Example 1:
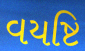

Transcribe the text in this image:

વયષ્ટિ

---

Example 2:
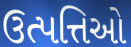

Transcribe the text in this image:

ઉત્પત્તિઓ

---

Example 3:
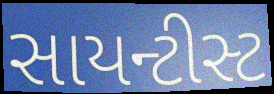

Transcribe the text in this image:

સાયન્ટીસ્ટ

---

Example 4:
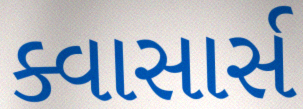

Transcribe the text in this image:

ક્વાસાર્સ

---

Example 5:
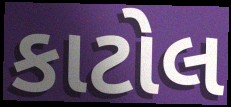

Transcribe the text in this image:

કાટોલ